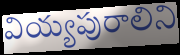
వియ్యపురాలిని